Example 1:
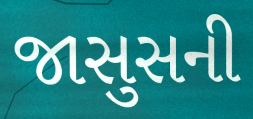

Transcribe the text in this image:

જાસુસની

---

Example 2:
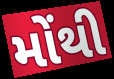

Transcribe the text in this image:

મોંથી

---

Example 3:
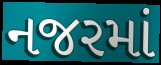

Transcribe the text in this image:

નજરમાં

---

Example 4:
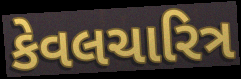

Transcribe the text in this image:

કેવલચારિત્ર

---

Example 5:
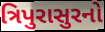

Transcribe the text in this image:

ત્રિપુરાસુરનો